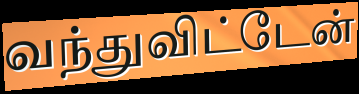
வந்துவிட்டேன்